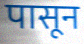
पासून